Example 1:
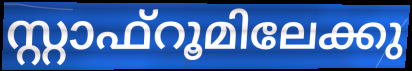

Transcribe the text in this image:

സ്റ്റാഫ്റൂമിലേക്കു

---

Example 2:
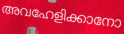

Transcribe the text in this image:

അവഹേളിക്കാനോ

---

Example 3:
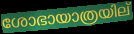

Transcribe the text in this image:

ശോഭായാത്രയില്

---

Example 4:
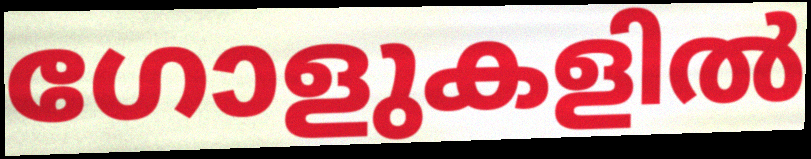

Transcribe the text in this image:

ഗോളുകളിൽ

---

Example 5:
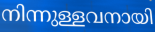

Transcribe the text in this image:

നിന്നുള്ളവനായി